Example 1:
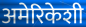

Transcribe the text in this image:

अमेरिकेशी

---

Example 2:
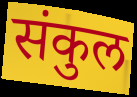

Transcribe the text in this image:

संकुल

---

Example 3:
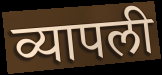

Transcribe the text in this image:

व्यापली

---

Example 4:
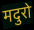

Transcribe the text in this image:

मदुरो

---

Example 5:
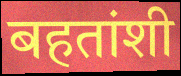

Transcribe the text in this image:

बहतांशी